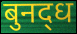
बुनद्ध